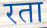
रता